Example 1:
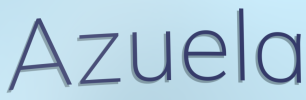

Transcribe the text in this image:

Azuela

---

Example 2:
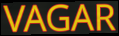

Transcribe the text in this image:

VAGAR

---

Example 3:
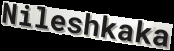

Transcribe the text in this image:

Nileshkaka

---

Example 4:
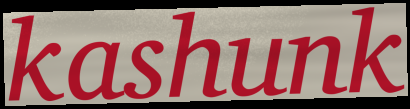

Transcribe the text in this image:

kashunk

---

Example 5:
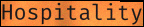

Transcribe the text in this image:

Hospitality